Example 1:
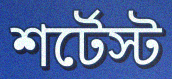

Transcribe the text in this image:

শর্টেস্ট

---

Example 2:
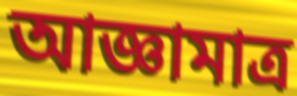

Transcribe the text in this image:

আজ্ঞামাত্র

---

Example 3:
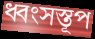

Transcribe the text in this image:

ধ্বংসস্তূপ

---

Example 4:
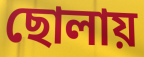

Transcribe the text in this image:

ছোলায়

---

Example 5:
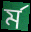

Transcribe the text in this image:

র্ম